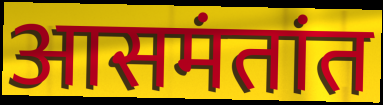
आसमंतांत